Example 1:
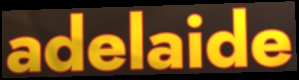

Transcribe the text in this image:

adelaide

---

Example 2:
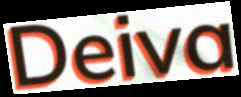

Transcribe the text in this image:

Deiva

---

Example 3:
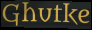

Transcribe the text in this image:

Ghutke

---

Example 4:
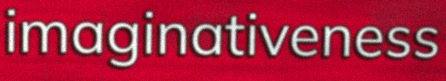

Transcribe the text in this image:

imaginativeness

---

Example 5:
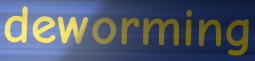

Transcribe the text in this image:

deworming